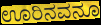
ಊರಿನವನೂ